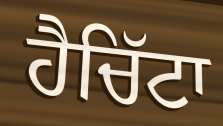
ਹੈਚਿੱਟਾ